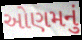
ઓણમનું